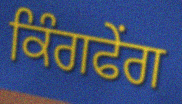
ਕਿੰਗਫੇਂਗ